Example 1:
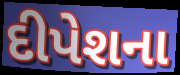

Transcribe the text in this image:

દીપેશના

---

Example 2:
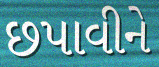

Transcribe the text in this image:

છપાવીને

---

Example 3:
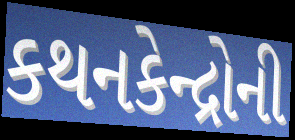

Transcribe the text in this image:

કથનકેન્દ્રોની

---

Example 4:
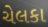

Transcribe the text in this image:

ચેલકા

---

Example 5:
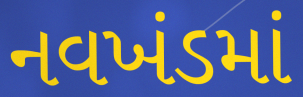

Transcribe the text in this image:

નવખંડમાં